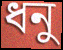
ধনু